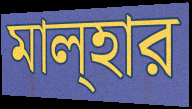
মাল্হার